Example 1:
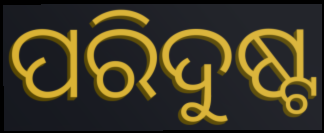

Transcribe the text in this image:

ପରିଦୁଷ୍ଟ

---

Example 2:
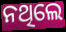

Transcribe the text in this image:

ନଥିଲେ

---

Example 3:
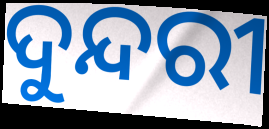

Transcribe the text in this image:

ଦୁନ୍ଦରୀ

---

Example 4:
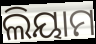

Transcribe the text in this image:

ଲିୟାମ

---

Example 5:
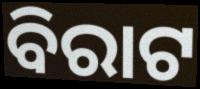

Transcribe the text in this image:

ବିରାଟ